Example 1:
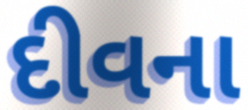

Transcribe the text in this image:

દીવના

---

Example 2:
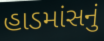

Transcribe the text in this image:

હાડમાંસનું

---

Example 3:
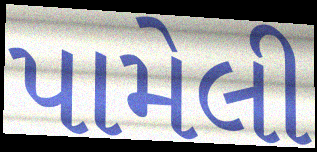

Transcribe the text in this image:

પામેલી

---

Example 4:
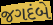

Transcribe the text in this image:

જગદંબે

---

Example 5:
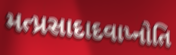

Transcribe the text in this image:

મત્પ્રસાદાદવાપ્નોતિ